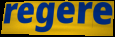
regere